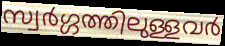
സ്വർഗ്ഗത്തിലുള്ളവർ